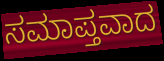
ಸಮಾಪ್ತವಾದ